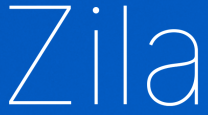
Zila